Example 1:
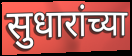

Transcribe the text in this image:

सुधारांच्या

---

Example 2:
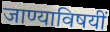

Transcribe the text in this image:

जाण्याविषयीं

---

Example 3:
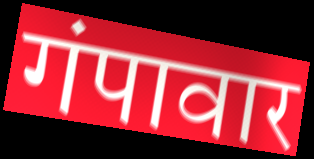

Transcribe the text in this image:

गंपावार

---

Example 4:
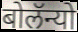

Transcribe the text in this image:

बोलॅन्यो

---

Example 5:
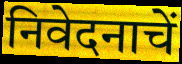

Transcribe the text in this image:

निवेदनाचें